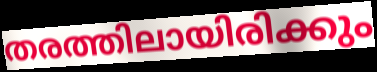
തരത്തിലായിരിക്കും